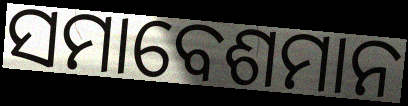
ସମାବେଶମାନ